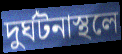
দুর্ঘটনাস্থলে